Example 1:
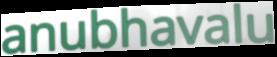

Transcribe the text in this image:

anubhavalu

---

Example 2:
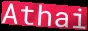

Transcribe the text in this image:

Athai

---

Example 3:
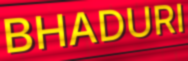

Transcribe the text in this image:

BHADURI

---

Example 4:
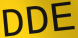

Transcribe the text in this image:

DDE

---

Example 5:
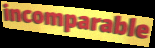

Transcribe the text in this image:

incomparable